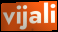
vijali